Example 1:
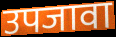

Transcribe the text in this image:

उपजावा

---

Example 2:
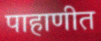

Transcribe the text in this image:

पाहाणीत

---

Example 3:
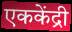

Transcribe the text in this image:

एककेंद्री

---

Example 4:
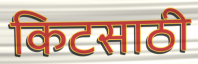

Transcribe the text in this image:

किटसाठी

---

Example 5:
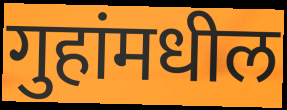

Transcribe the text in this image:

गुहांमधील